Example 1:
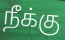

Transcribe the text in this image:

நீக்கு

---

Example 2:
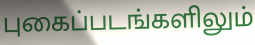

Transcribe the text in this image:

புகைப்படங்களிலும்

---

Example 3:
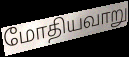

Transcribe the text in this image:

மோதியவாறு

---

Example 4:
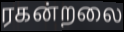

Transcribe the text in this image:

ரகன்றலை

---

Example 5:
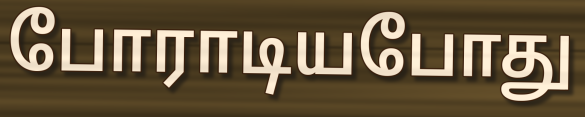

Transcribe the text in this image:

போராடியபோது